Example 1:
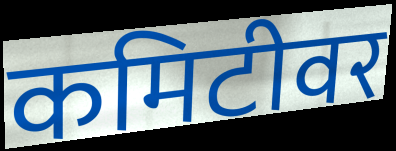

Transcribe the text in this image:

कमिटीवर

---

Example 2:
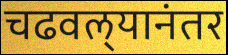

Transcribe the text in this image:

चढवल्यानंतर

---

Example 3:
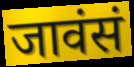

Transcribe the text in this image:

जावंसं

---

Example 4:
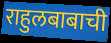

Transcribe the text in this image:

राहुलबाबाची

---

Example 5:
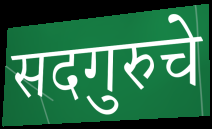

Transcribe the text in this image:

सदगुरुचे